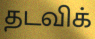
தடவிக்